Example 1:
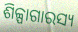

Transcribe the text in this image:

ଶିଳ୍ପାଗାରସ୍ୟ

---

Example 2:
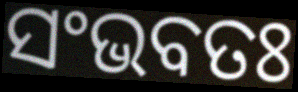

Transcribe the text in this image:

ସଂଭବତଃ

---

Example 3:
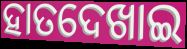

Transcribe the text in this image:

ହାତଦେଖାଇ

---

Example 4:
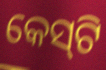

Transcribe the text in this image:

କେସ୍‌ଟି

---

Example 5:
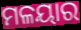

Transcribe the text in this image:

ମଳୟାର